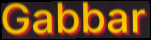
Gabbar